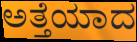
ಅತ್ತೆಯಾದ